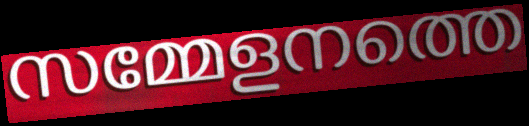
സമ്മേളനത്തെ